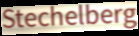
Stechelberg